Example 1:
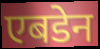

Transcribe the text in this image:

एबडेन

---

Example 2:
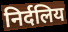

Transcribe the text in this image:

निर्दलिय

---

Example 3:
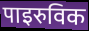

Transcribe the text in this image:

पाइरुविक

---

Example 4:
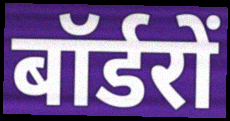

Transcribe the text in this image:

बॉर्डरों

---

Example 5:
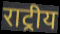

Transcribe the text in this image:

राट्रीय